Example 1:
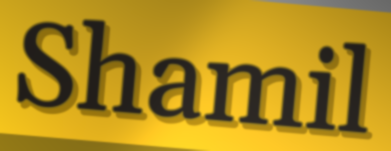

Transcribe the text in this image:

Shamil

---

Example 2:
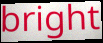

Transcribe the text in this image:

bright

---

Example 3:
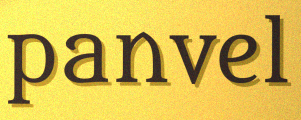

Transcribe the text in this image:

panvel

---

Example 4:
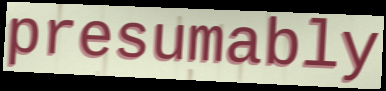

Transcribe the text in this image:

presumably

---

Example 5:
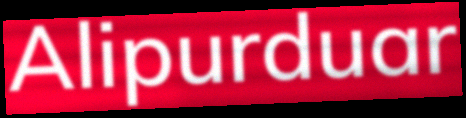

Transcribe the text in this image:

Alipurduar